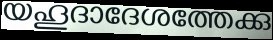
യഹൂദാദേശത്തേക്കു